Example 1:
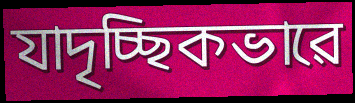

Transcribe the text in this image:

যাদৃচ্ছিকভাৱে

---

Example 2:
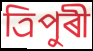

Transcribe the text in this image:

ত্ৰিপুৰী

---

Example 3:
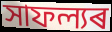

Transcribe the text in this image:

সাফল্যৰ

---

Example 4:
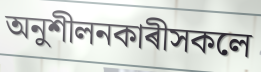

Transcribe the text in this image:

অনুশীলনকাৰীসকলে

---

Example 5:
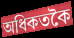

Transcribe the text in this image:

অধিকতকৈ